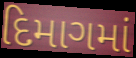
દિમાગમાં